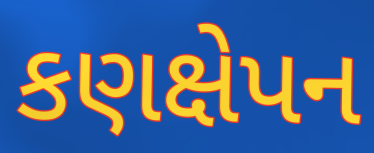
કણક્ષેપન